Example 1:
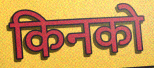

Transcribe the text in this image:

किनको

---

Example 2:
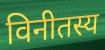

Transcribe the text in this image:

विनीतस्य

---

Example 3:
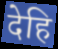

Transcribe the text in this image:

देहि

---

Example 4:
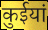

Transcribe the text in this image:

कुईयां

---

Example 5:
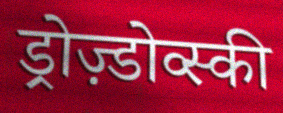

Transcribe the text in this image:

ड्रोज़्डोव्स्की